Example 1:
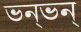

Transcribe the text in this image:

ভন্ভন্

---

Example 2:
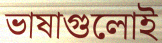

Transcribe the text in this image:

ভাষাগুলোই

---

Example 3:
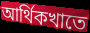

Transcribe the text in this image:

আর্থিকখাতে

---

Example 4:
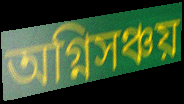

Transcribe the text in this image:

অগ্নিসঞ্চয়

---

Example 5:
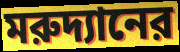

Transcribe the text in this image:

মরুদ্যানের